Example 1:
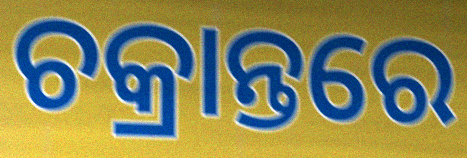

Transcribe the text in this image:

ଚକ୍ରାନ୍ତରେ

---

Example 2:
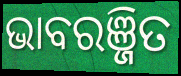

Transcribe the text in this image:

ଭାବରଞ୍ଜିତ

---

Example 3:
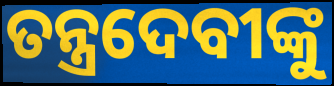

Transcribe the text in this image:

ତନ୍ତ୍ରଦେବୀଙ୍କୁ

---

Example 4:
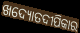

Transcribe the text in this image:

ଖଦ୍ୟୋତଦୀପିକାର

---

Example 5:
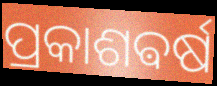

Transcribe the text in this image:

ପ୍ରକାଶଵର୍ଷ